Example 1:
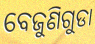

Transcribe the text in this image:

ବେଜୁଣିଗୁଡା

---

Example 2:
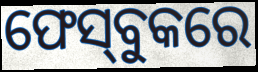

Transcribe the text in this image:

ଫେସ୍‌ବୁକରେ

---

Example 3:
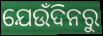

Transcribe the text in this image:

ଯେଉଁଦିନରୁ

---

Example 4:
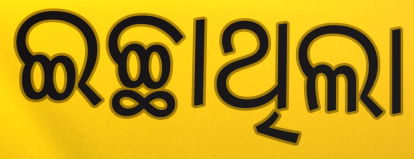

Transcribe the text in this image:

ଇଚ୍ଛାଥିଲା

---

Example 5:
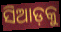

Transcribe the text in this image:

ସିଆଡ଼କୁ